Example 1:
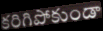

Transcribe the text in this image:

కరిగిపోకుండా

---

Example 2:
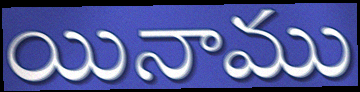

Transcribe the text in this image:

యినాము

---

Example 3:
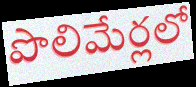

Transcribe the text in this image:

పొలిమేర్లలో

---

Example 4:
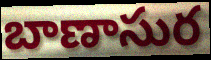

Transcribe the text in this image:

బాణాసుర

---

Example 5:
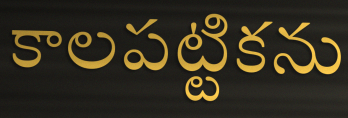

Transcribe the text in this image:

కాలపట్టికను